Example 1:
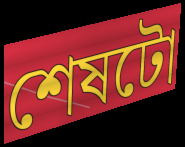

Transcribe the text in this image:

শেষটো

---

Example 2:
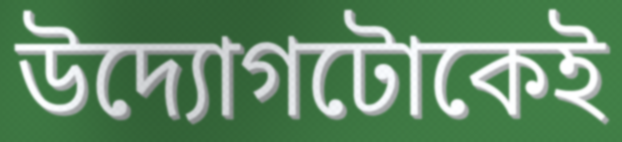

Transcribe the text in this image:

উদ্যোগটোকেই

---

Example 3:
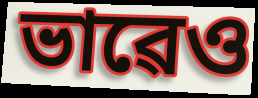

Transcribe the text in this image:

ভাৱেও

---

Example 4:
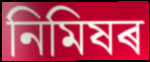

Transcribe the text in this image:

নিমিষৰ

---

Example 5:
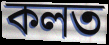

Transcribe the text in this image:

কলত